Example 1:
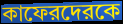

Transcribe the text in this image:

কাফেরদেরকে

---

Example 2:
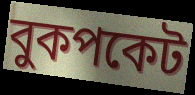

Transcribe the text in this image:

বুকপকেট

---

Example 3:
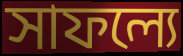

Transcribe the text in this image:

সাফল্যে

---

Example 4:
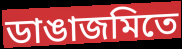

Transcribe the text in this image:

ডাঙাজমিতে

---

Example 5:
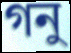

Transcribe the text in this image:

গনু